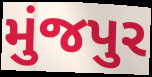
મુંજપુર